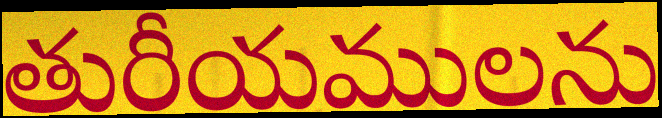
తురీయములను